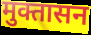
मुक्तासन